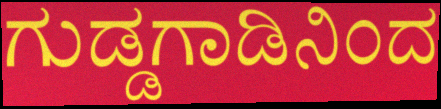
ಗುಡ್ಡಗಾಡಿನಿಂದ